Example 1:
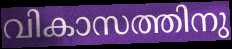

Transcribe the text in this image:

വികാസത്തിനു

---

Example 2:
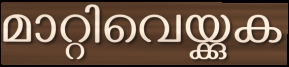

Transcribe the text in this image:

മാറ്റിവെയ്ക്കുക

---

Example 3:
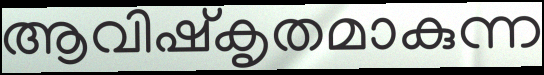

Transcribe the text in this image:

ആവിഷ്കൃതമാകുന്ന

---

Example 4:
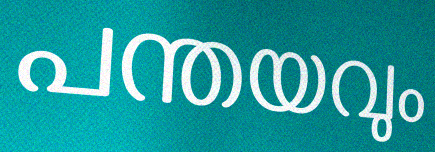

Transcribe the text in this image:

പന്തയവും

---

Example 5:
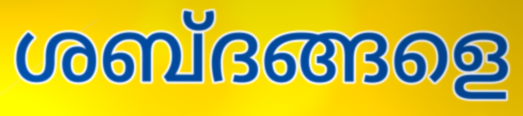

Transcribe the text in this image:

ശബ്ദങ്ങളെ